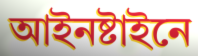
আইনষ্টাইনে